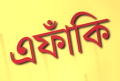
এফাঁকি